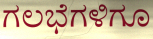
ಗಲಭೆಗಳಿಗೂ